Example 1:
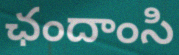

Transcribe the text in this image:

ఛందాంసి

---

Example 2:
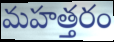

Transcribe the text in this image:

మహత్తరం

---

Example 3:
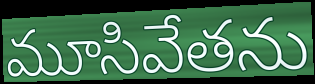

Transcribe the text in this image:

మూసివేతను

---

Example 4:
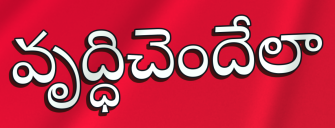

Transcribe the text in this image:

వృద్ధిచెందేలా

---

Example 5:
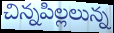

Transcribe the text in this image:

చిన్నపిల్లలున్న